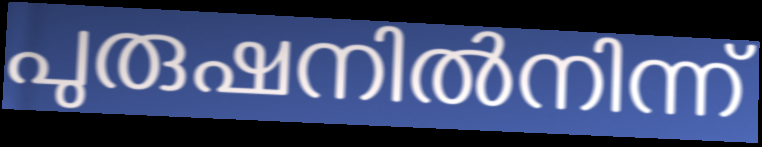
പുരുഷനിൽനിന്ന്